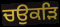
ਚਉਕੜਿ